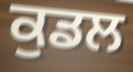
ਕੁਡਲ